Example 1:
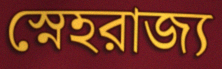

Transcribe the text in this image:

স্নেহরাজ্য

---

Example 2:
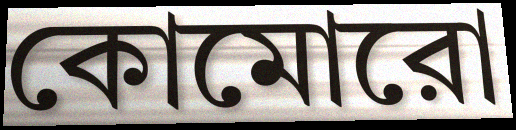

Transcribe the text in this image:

কোমোরো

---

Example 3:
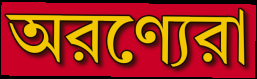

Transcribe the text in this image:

অরণ্যেরা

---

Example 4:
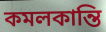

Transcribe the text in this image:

কমলকান্তি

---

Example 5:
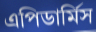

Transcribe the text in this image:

এপিডার্মিস